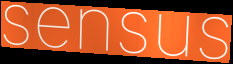
sensus